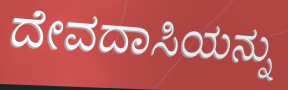
ದೇವದಾಸಿಯನ್ನು